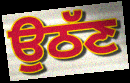
ਉਠੱਣ